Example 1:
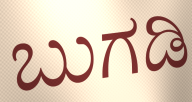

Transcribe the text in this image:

ಬುಗಡಿ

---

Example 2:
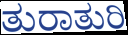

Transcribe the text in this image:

ತುರಾತುರಿ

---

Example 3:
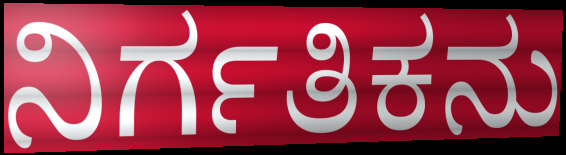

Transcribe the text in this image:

ನಿರ್ಗತಿಕನು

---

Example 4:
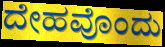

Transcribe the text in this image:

ದೇಹವೊಂದು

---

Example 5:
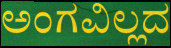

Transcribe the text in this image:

ಅಂಗವಿಲ್ಲದ